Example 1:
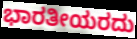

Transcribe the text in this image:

ಭಾರತೀಯರದು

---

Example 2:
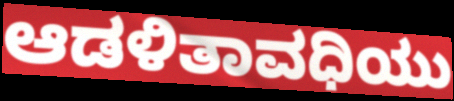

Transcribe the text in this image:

ಆಡಳಿತಾವಧಿಯು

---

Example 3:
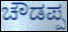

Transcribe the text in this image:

ಚೌಡಪ್ಪ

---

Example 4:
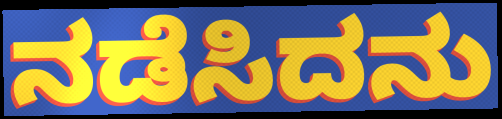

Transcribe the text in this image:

ನಡೆಸಿದನು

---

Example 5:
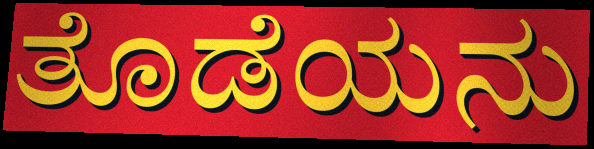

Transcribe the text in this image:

ತೊಡೆಯನು